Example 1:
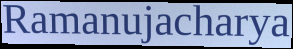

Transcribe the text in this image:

Ramanujacharya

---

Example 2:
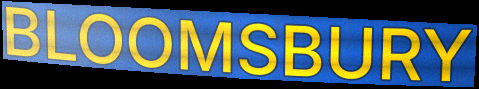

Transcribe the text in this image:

BLOOMSBURY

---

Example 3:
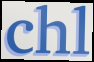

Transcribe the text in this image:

chl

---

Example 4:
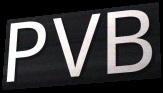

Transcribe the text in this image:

PVB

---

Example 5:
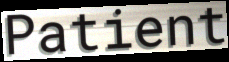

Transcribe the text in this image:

Patient